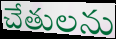
చేతులను